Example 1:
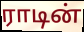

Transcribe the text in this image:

ராடின்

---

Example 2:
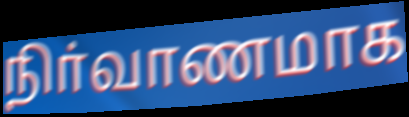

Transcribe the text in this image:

நிர்வாணமாக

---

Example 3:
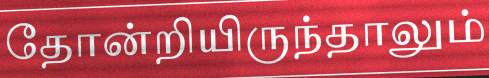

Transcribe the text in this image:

தோன்றியிருந்தாலும்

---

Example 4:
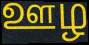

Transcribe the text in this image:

ஊழ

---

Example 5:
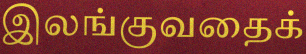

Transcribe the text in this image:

இலங்குவதைக்